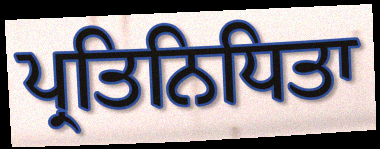
ਪ੍ਰਤਿਨਿਧਿਤਾ